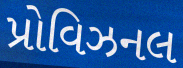
પ્રોવિઝનલ